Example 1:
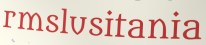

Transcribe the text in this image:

rmslusitania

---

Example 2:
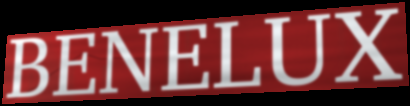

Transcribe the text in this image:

BENELUX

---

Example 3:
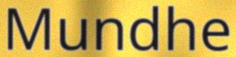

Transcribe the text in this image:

Mundhe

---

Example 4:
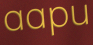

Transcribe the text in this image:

aapu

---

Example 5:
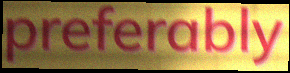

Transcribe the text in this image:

preferably